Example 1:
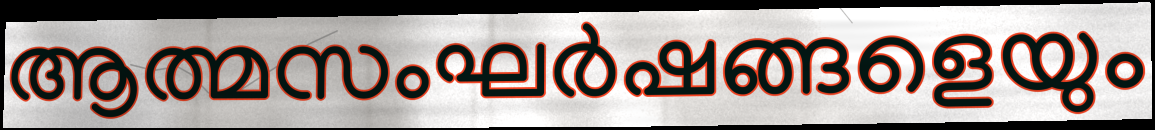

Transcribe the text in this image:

ആത്മസംഘർഷങ്ങളെയും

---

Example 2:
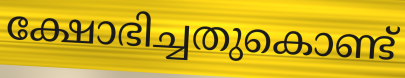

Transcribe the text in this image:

ക്ഷോഭിച്ചതുകൊണ്ട്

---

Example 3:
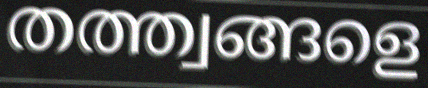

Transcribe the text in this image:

തത്ത്വങ്ങളെ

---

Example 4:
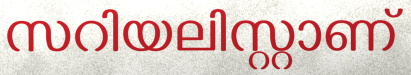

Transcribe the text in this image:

സറിയലിസ്റ്റാണ്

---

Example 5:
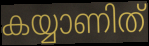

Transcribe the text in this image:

കയ്യാണിത്